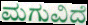
ಮಗುವಿದೆ